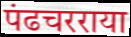
पंढचरराया